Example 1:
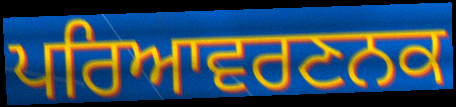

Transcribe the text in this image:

ਪਰਿਆਵਰਣਨਕ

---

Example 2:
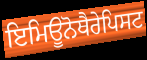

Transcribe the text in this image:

ਇਮਿਊਨੋਥੈਰੇਪਿਸਟ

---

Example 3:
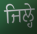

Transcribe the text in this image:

ਜਿਲ੍ਹੇ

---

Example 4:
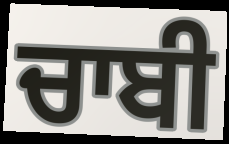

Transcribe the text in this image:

ਚਾਬੀ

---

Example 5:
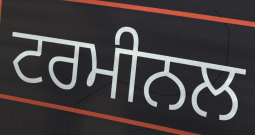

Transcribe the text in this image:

ਟਰਮੀਨਲ